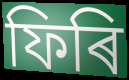
ফিৰি